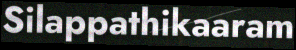
Silappathikaaram